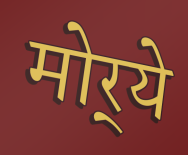
मोर्ये